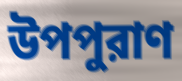
উপপুরাণ